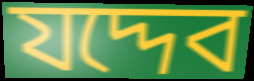
যদ্দেব